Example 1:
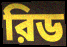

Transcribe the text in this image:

রিড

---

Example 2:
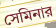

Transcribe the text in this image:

সেমিনার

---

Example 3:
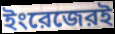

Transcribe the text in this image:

ইংরেজেরই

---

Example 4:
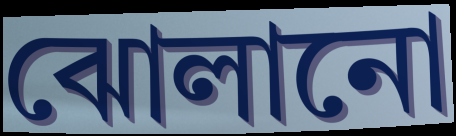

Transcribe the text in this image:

ঝোলানো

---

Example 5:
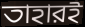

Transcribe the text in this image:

তাহারই